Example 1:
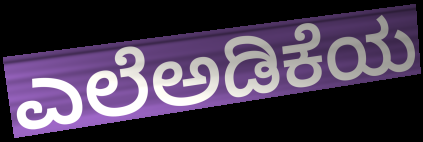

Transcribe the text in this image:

ಎಲೆಅಡಿಕೆಯ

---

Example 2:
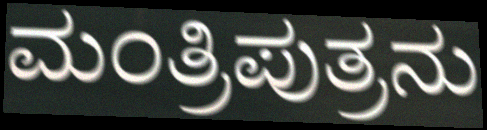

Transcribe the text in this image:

ಮಂತ್ರಿಪುತ್ರನು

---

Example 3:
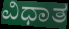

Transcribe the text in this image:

ವಿಧಾತ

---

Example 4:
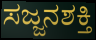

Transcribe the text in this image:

ಸಜ್ಜನಶಕ್ತಿ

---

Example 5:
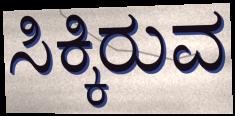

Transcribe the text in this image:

ಸಿಕ್ಕಿರುವ